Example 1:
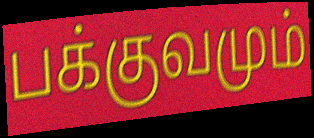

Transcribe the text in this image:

பக்குவமும்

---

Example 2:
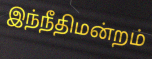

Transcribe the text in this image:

இந்நீதிமன்றம்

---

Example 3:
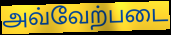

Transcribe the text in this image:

அவ்வேற்படை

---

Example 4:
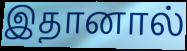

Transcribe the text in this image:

இதானால்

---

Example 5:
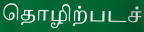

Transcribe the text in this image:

தொழிற்படச்